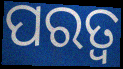
ପରତ୍ୱ